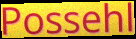
Possehl